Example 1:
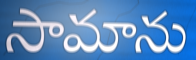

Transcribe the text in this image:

సామాను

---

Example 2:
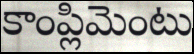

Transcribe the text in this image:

కాంప్లిమెంటు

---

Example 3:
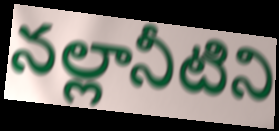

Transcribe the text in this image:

నల్లానీటిని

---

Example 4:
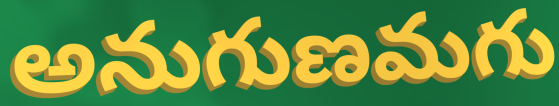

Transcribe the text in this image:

అనుగుణమగు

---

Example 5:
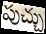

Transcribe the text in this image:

పుచ్చు